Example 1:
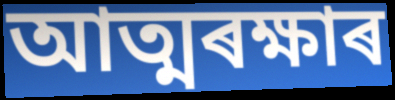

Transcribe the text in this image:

আত্মৰক্ষাৰ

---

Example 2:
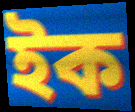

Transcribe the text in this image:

ইক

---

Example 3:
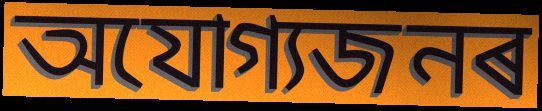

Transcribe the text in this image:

অযোগ্যজনৰ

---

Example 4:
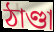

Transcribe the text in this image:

ঠাণ্ডা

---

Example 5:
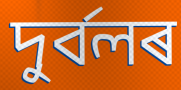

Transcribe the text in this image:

দুৰ্বলৰ